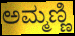
ಅಮ್ಮಣ್ಣಿ